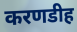
करणडीह